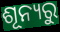
ଶୂନ୍ୟରୁ